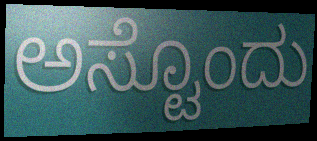
ಅಸ್ಟೊಂದು